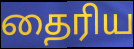
தைரிய